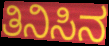
ತಿನಿಸಿನ